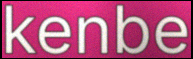
kenbe